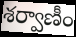
శర్వాణీం